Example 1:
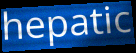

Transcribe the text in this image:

hepatic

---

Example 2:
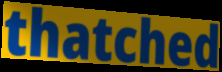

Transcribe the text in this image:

thatched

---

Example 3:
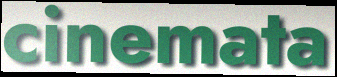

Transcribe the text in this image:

cinemata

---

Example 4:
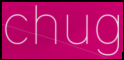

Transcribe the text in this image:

chug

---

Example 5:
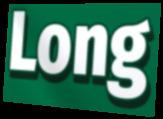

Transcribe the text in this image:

Long